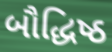
બૌદ્ધિષ્ઠ